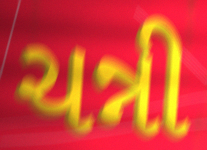
ચન્ની